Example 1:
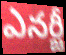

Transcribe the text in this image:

ఎనర్జీ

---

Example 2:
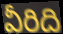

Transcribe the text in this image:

వీరిది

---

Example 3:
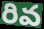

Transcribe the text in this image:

రివ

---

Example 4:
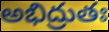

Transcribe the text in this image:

అభిద్రుతః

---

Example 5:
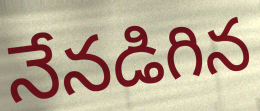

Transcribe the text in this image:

నేనడిగిన